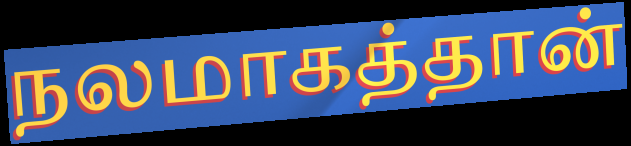
நலமாகத்தான்